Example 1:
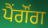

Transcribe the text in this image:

ਪੈਂਗੌਂਗ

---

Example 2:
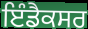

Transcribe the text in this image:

ਇੰਡੈਕਸਰ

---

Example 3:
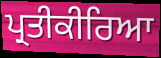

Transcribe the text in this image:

ਪ੍ਰਤੀਕੀਰਿਆ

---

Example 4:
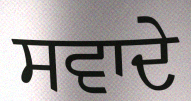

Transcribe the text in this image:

ਸਵਾਦੇ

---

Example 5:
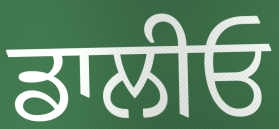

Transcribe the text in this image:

ਡਾਲੀਓ